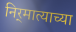
निर्मात्याच्या